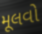
મૂલવો